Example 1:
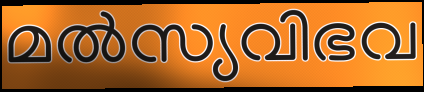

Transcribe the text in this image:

മൽസ്യവിഭവ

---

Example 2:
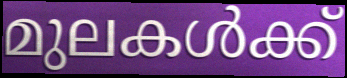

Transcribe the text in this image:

മുലകൾക്ക്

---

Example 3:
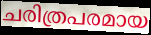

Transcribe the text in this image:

ചരിത്രപരമായ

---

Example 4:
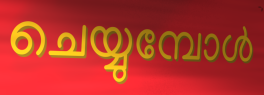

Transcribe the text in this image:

ചെയ്യുമ്പോൾ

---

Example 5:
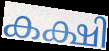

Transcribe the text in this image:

കക്ഷി